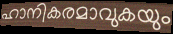
ഹാനികരമാവുകയും